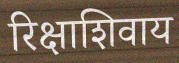
रिक्षाशिवाय